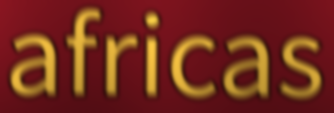
africas